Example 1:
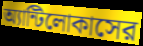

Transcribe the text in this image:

অ্যান্টিলোকাসের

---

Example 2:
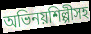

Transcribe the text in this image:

অভিনয়শিল্পীসহ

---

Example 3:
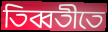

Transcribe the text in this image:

তিব্বতীতে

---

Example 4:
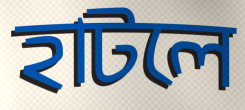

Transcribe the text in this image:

হাটলে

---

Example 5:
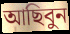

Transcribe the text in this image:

আছিবুন